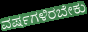
ವರ್ಷಗಳಿರಬೇಕು